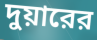
দুয়ারের